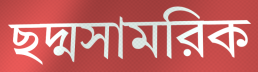
ছদ্মসামরিক